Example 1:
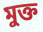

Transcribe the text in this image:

মুক্ত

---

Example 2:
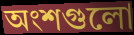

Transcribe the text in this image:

অংশগুলো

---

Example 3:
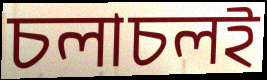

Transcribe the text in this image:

চলাচলই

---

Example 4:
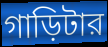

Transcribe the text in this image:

গাড়িটার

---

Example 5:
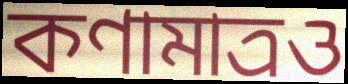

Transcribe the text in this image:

কণামাত্রও